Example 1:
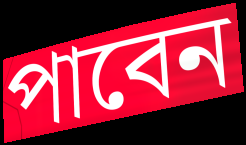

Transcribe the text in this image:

পাবেন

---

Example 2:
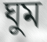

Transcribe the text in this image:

ঘুম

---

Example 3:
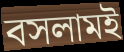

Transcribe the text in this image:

বসলামই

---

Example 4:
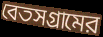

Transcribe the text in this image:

বেতসগ্রামের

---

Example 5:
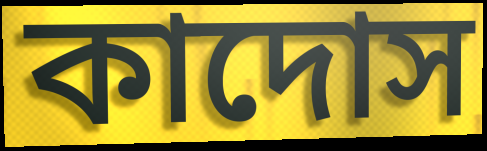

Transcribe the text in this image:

কাদোস